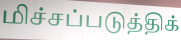
மிச்சப்படுத்திக்